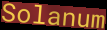
Solanum